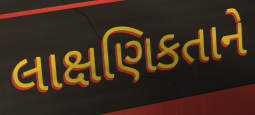
લાક્ષણિકતાને